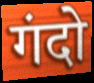
गंदो